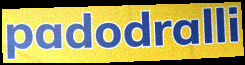
padodralli